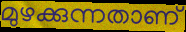
മുഴക്കുന്നതാണ്